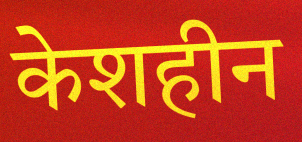
केशहीन